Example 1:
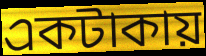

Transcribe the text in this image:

একটাকায়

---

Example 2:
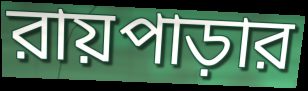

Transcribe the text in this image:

রায়পাড়ার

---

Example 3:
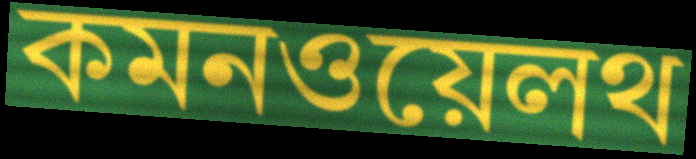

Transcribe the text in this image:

কমনওয়েলথ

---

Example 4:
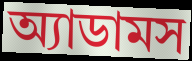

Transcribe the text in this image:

অ্যাডামস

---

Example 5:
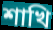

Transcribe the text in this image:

শাখি